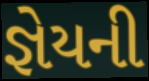
જ્ઞેયની